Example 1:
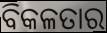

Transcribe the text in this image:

ବିକଳତାର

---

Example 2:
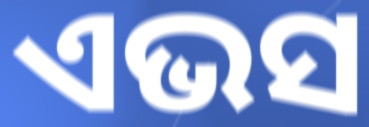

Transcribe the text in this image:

ଏଭସ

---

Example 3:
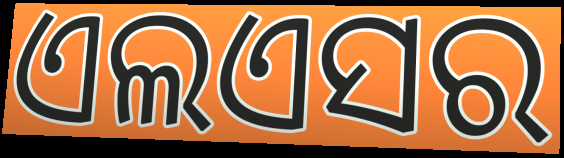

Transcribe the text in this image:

ଏଲଏସର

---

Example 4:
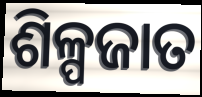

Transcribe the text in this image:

ଶିଳ୍ପଜାତ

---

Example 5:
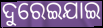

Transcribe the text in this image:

ଦୁରେଇଯାଇ